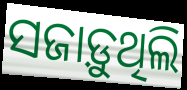
ସଜାଡ଼ୁଥିଲି